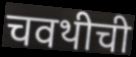
चवथीची